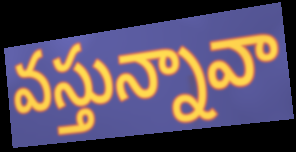
వస్తున్నావా